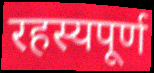
रहस्यपूर्ण